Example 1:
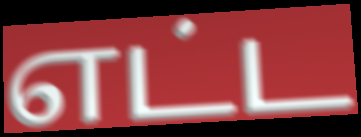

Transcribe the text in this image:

எட்ட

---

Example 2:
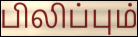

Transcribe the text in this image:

பிலிப்பும்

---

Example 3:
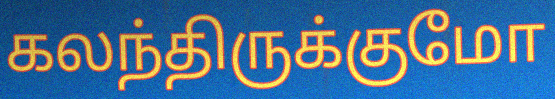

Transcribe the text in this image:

கலந்திருக்குமோ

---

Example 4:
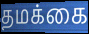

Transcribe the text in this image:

தமக்கை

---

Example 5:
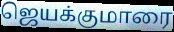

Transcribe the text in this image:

ஜெயக்குமாரை